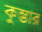
কুম্ভার